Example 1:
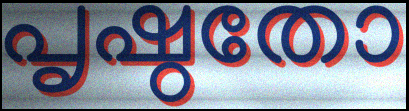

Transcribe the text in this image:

പൃഷ്ഠതോ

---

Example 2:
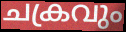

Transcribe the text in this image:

ചക്രവും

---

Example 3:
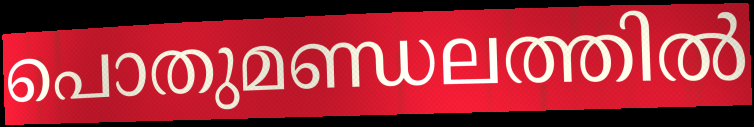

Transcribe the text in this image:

പൊതുമണ്ഡലത്തിൽ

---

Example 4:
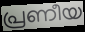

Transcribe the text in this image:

പ്രണീയ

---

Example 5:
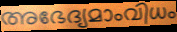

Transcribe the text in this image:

അഭേദ്യമാംവിധം